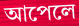
আপেলে